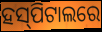
ହସ୍‍ପିଟାଲରେ